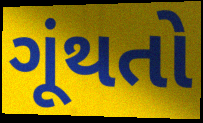
ગૂંથતો